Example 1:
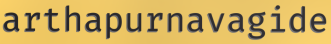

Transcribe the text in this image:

arthapurnavagide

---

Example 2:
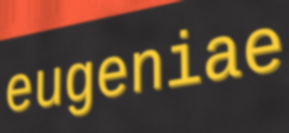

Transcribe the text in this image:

eugeniae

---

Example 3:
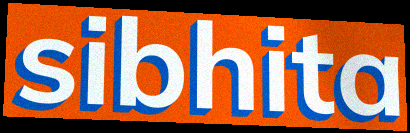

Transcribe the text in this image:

sibhita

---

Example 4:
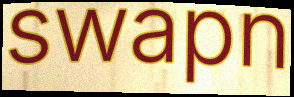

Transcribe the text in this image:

swapn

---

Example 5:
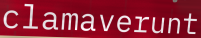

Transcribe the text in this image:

clamaverunt